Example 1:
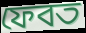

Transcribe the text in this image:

ফেবত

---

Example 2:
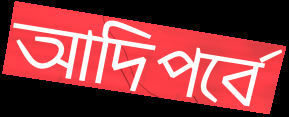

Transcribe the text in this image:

আদিপর্বে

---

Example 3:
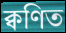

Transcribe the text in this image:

ক্বণিত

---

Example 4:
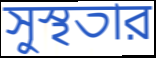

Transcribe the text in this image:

সুস্থতার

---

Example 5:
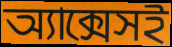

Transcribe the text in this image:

অ্যাক্সেসই